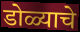
डोळ्याचे